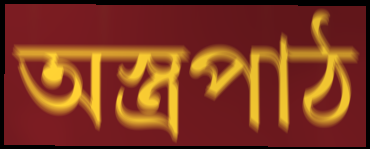
অস্ত্রপাঠ